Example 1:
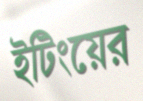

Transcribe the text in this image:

ইটিংয়ের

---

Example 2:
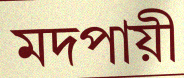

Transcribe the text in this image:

মদপায়ী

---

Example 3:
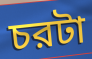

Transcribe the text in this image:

চরটা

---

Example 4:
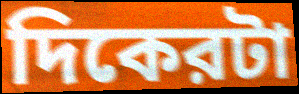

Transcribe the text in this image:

দিকেরটা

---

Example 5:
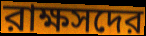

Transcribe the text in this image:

রাক্ষসদের